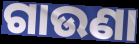
ଗାଉଣା